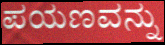
ಪಯಣವನ್ನು